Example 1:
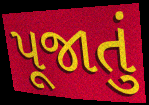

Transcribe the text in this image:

પૂજાતું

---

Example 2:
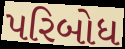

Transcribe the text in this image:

પરિબોધ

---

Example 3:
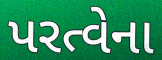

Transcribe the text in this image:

પરત્વેના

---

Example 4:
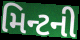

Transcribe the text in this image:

મિન્ટની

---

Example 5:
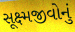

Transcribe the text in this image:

સૂક્ષ્મજીવોનું